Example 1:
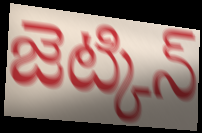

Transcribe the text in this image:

జెట్కిన్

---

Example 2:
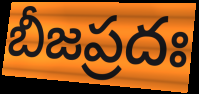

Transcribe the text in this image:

బీజప్రదః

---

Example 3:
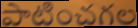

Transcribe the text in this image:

పాటించగల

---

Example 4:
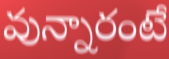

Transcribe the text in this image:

వున్నారంటే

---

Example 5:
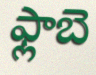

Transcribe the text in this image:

ఫ్లాబె